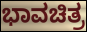
ಭಾವಚಿತ್ರ